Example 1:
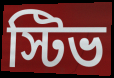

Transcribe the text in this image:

স্টিভ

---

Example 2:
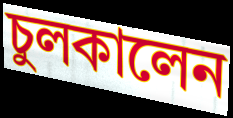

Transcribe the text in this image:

চুলকালেন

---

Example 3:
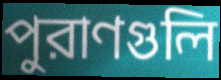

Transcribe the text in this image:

পুরাণগুলি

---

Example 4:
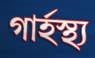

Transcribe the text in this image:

গার্হস্থ্য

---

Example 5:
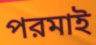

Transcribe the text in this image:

পরমাই